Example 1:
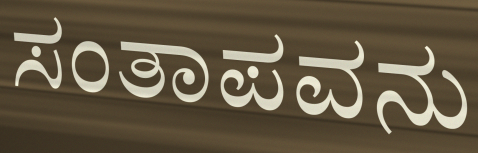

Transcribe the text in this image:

ಸಂತಾಪವನು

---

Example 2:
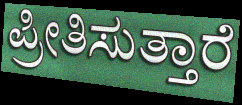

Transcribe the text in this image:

ಪ್ರೀತಿಸುತ್ತಾರೆ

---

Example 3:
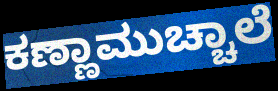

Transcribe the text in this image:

ಕಣ್ಣಾಮುಚ್ಚಾಲೆ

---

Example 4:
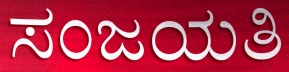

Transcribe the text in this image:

ಸಂಜಯತಿ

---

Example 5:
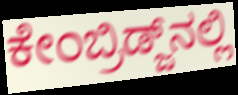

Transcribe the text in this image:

ಕೇಂಬ್ರಿಡ್ಜ್‌ನಲ್ಲಿ